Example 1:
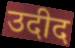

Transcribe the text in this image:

उदीद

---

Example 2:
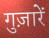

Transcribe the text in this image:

गुज़ारें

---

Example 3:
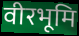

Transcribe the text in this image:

वीरभूमि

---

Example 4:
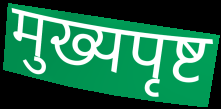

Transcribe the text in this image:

मुख्यपृष्ट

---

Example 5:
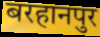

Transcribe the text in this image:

बरहानपुर